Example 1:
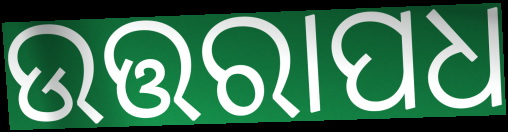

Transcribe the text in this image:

ଉତ୍ତରାପଧ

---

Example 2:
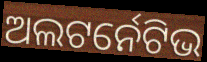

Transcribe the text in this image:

ଅଲଟର୍ନେଟିଭ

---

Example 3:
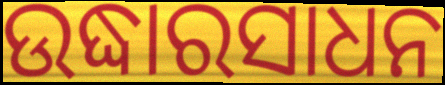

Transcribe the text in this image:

ଉଦ୍ଧାରସାଧନ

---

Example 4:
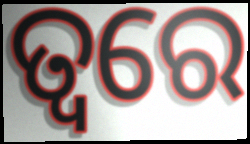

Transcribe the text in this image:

ତ୍ଵରେ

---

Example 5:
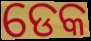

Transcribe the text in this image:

ଡେକ